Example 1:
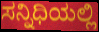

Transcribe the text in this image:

ಸನ್ನಿಧಿಯಲ್ಲಿ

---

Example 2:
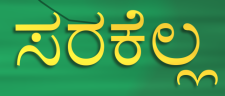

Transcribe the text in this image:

ಸರಕೆಲ್ಲ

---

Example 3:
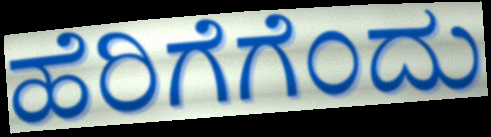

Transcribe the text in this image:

ಹೆರಿಗೆಗೆಂದು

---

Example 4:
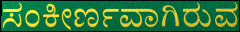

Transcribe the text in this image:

ಸಂಕೀರ್ಣವಾಗಿರುವ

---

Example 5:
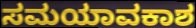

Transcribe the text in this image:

ಸಮಯಾವಕಾಶ